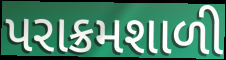
પરાક્રમશાળી